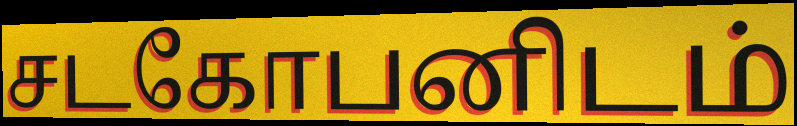
சடகோபனிடம்